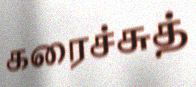
கரைச்சுத்